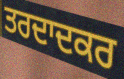
ਤਰਦਾਦਕਰ